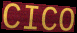
CICO